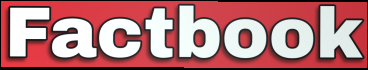
Factbook